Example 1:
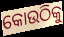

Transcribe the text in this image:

କୋଉଠିକୁ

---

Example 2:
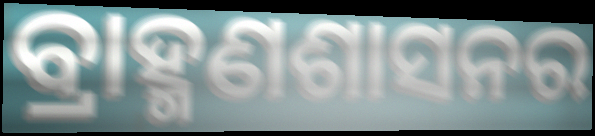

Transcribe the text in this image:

ବ୍ରାହ୍ମଣଶାସନର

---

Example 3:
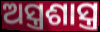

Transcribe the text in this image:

ଅସ୍ତ୍ରଶାସ୍ତ୍ର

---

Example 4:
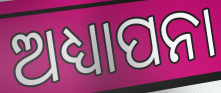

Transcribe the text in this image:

ଅଧ୍ୟାପନା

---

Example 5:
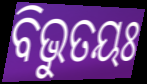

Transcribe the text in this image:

ବିଭୁତୟଃ